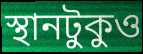
স্থানটুকুও